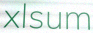
xlsum